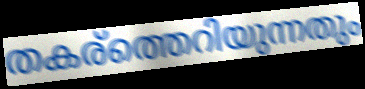
തകര്ത്തെറിയുന്നതും